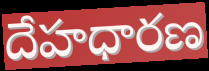
దేహధారణ